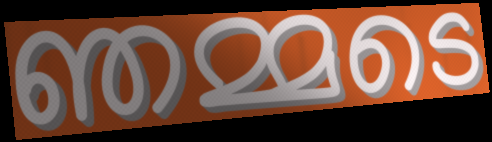
ഞമ്മടെ